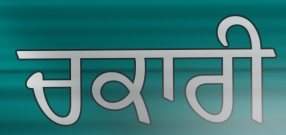
ਚਕਾਰੀ